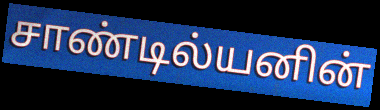
சாண்டில்யனின்